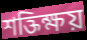
শক্তিক্ষয়